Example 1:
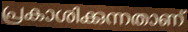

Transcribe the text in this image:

പ്രകാശിക്കുന്നതാണ്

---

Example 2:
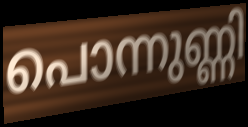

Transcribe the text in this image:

പൊന്നുണ്ണി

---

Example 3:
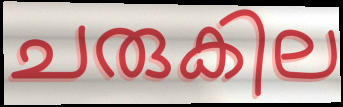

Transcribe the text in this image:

ചരുകില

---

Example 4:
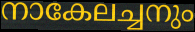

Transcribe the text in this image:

നാകേലച്ചനും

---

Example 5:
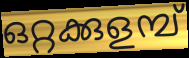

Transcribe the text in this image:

ഒറ്റക്കുളമ്പ്